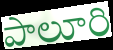
పాలూరి